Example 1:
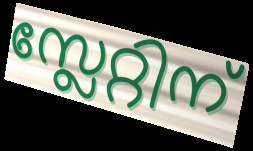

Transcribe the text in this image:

സ്ലേറ്റിന്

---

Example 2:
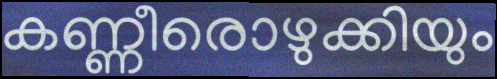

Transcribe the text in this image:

കണ്ണീരൊഴുക്കിയും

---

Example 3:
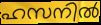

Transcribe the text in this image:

ഹസനിൽ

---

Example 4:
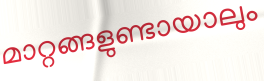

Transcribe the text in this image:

മാറ്റങ്ങളുണ്ടായാലും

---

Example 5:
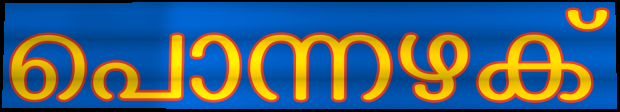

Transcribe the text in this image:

പൊന്നഴക്